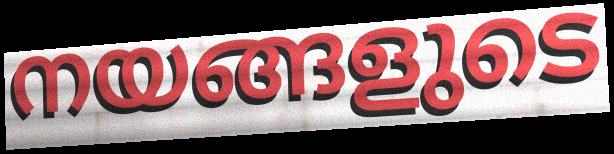
നയങ്ങളുടെ